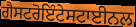
ਗੈਸਟਰੋਇੰਟੇਸਟਾਈਨਲ